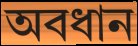
অবধান